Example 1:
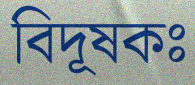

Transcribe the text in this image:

বিদূষকঃ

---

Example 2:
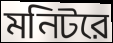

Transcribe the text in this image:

মনিটরে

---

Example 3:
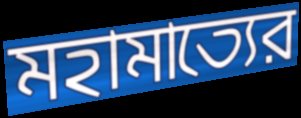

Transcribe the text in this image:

মহামাত্যের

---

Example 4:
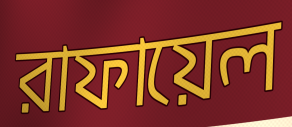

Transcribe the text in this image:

রাফায়েল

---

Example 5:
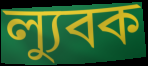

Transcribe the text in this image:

ল্যুবক